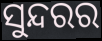
ସୁନ୍ଦରର